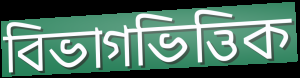
বিভাগভিত্তিক